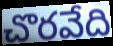
చొరవేది